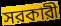
সরকারী